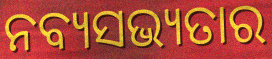
ନବ୍ୟସଭ୍ୟତାର